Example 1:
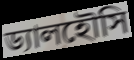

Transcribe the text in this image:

ড্যালহৌসি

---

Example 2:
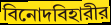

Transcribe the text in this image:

বিনোদবিহারীর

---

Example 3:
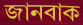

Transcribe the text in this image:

জানবাক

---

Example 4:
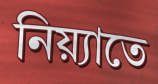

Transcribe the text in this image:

নিয়্যাতে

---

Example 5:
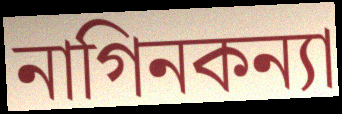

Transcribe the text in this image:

নাগিনকন্যা